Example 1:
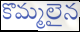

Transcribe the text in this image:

కొమ్మలైన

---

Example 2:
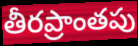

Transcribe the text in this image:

తీరప్రాంతపు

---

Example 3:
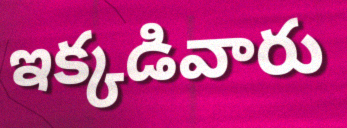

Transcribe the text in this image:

ఇక్కడివారు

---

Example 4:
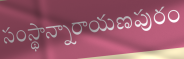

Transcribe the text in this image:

సంస్థాన్నారాయణపురం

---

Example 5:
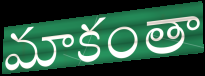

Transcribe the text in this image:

మాకంతా